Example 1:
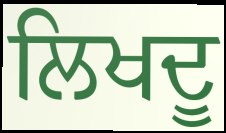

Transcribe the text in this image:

ਲਿਖਦੂ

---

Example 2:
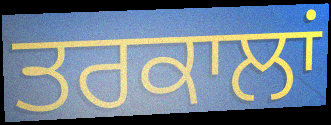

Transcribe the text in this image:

ਤਰਕਾਲਾਂ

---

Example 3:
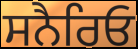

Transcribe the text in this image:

ਸਨੈਰਿਓ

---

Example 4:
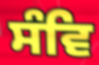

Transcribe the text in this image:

ਸੰਵਿ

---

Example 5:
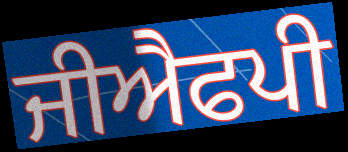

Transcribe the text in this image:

ਜੀਐਫਪੀ